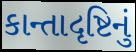
કાન્તાદૃષ્ટિનું